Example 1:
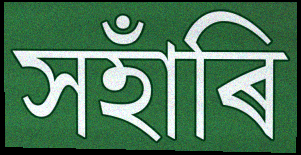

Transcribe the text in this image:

সহাঁৰি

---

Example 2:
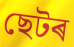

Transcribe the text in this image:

ছেটৰ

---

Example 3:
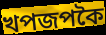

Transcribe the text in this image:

খপজপকৈ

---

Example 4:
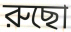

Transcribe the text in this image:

ৰুছো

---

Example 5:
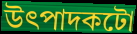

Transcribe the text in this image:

উৎপাদকটো